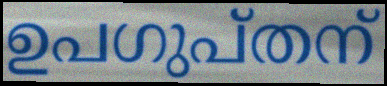
ഉപഗുപ്തന്